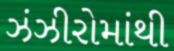
ઝંઝીરોમાંથી